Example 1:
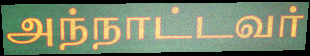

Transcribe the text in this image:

அந்நாட்டவர்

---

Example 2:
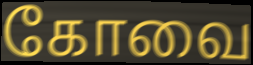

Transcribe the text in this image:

கோவை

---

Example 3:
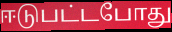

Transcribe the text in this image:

ஈடுபட்டபோது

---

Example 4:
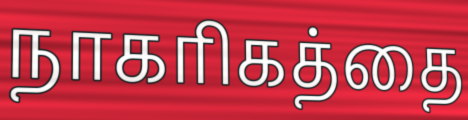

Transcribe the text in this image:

நாகரிகத்தை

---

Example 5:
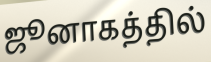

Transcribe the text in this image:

ஜூனாகத்தில்